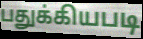
பதுக்கியபடி